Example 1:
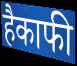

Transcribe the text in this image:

हैकाफी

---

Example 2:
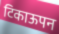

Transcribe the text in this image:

टिकाऊपन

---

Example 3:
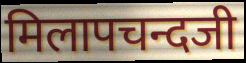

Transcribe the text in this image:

मिलापचन्दजी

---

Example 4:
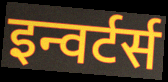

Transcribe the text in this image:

इन्वर्टर्स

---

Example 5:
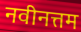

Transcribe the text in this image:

नवीनत्तम